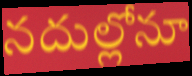
నదుల్లోనూ